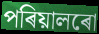
পৰিয়ালৰো